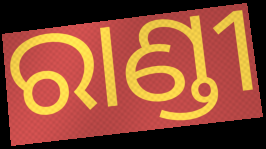
ରାଣ୍ଡୀ